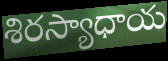
శిరస్యాధాయ